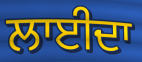
ਲਾਈਦਾ